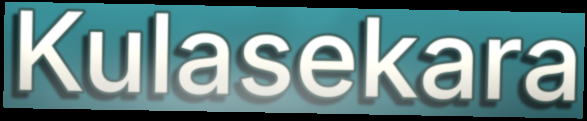
Kulasekara